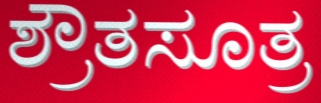
ಶ್ರೌತಸೂತ್ರ